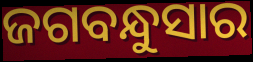
ଜଗବନ୍ଧୁସାର